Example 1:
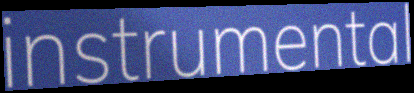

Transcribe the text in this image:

instrumental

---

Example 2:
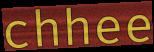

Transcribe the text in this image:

chhee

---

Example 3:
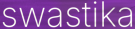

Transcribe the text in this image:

swastika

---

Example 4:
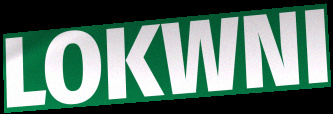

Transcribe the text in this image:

LOKWNI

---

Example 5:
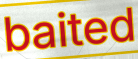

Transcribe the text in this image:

baited